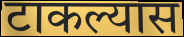
टाकल्यास